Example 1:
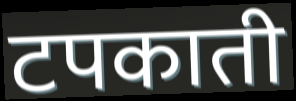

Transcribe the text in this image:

टपकाती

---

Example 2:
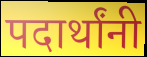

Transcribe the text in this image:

पदार्थांनी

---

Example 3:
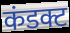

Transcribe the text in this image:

कंडक्ट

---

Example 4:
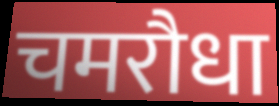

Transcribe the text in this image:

चमरौधा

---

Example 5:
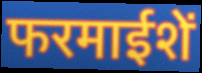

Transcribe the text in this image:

फरमाईशें